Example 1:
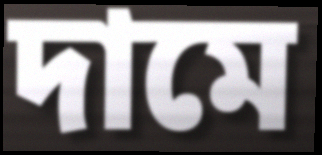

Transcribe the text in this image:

দামে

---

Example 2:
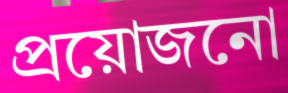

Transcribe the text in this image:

প্ৰয়োজনো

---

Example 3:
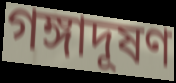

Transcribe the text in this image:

গঙ্গাদূষণ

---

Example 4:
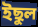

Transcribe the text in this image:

ইছুল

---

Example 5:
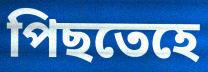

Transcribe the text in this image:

পিছতেহে